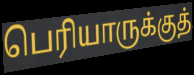
பெரியாருக்குத்